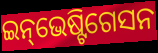
ଇନ୍‌ଭେଷ୍ଟିଗେସନ